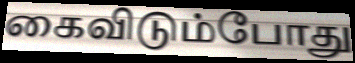
கைவிடும்போது